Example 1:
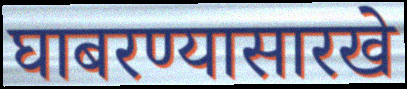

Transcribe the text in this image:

घाबरण्यासारखे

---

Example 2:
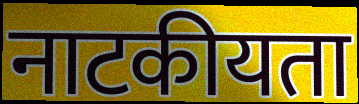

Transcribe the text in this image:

नाटकीयता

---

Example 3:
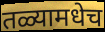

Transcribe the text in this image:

तळ्यामधेच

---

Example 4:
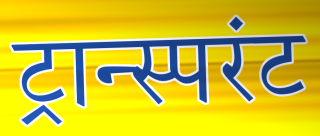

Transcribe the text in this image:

ट्रान्स्परंट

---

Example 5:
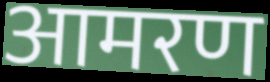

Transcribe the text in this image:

आमरण